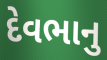
દેવભાનુ